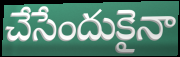
చేసేందుకైనా